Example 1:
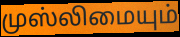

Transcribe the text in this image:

முஸ்லிமையும்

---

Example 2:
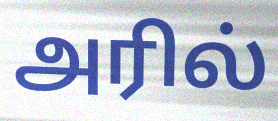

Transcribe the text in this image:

அரில்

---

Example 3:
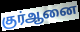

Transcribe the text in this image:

குர்ஆனை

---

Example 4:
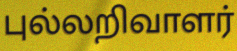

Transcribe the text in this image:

புல்லறிவாளர்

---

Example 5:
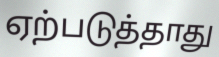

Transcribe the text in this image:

ஏற்படுத்தாது